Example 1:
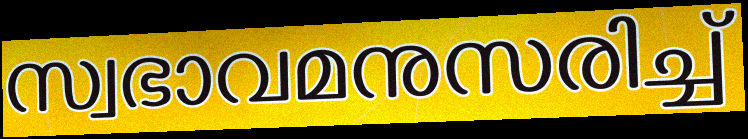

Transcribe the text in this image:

സ്വഭാവമനുസരിച്ച്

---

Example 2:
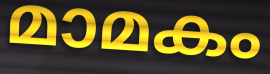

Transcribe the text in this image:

മാമകം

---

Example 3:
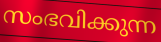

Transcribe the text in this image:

സംഭവിക്കുന്ന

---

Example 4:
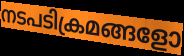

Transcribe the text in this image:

നടപടിക്രമങ്ങളോ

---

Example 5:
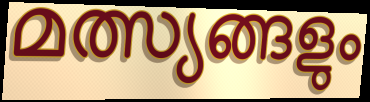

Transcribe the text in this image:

മത്സ്യങ്ങളും